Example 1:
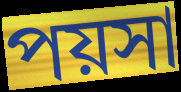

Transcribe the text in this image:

পয়সা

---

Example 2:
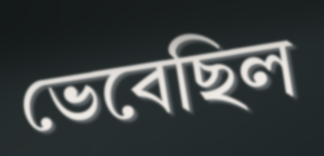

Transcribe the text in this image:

ভেবেছিল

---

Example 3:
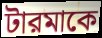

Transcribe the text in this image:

টারমাকে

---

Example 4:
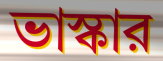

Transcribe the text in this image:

ভাস্কার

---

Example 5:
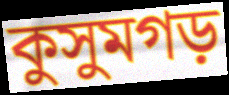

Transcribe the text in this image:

কুসুমগড়